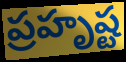
ప్రహృష్ట